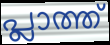
പ്ലാത്ത്